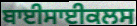
ਬਾਈਸਾਈਕਲਸ